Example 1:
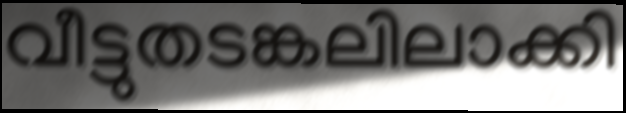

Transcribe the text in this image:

വീട്ടുതടങ്കലിലാക്കി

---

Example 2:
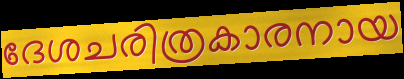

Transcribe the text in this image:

ദേശചരിത്രകാരനായ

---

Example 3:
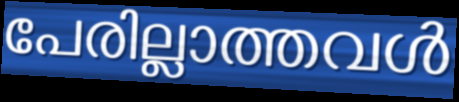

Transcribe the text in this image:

പേരില്ലാത്തവൾ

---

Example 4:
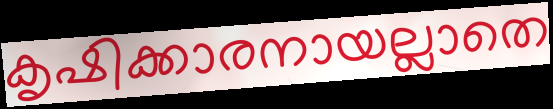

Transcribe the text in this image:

കൃഷിക്കാരനായല്ലാതെ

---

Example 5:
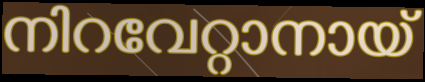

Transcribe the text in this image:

നിറവേറ്റാനായ്